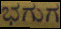
ಭಗುಗ